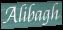
Alibagh